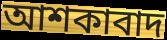
আশকাবাদ